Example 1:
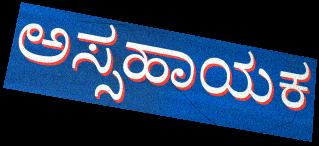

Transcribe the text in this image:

ಅಸ್ಸಹಾಯಕ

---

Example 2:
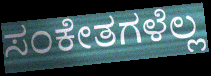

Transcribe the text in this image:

ಸಂಕೇತಗಳೆಲ್ಲ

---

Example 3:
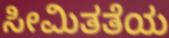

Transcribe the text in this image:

ಸೀಮಿತತೆಯ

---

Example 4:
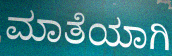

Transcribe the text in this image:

ಮಾತೆಯಾಗಿ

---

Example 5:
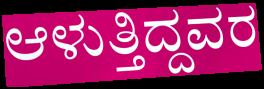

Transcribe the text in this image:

ಆಳುತ್ತಿದ್ದವರ